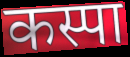
कस्पा